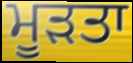
ਮੂੜਤਾ